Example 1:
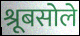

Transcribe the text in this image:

श्रूबसोले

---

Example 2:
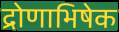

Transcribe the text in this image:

द्रोणाभिषेक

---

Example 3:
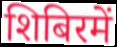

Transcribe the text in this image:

शिबिरमें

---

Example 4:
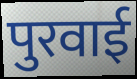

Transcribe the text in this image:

पुरवाई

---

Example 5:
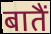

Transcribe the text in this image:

बातैं